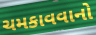
ચમકાવવાનો